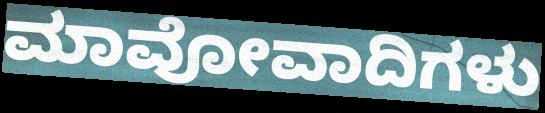
ಮಾವೋವಾದಿಗಳು